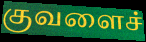
குவளைச்